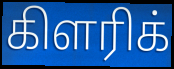
கிளரிக்